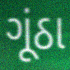
ગૂંઠા